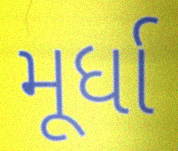
મૂર્ધા